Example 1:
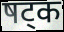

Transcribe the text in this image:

षट्क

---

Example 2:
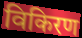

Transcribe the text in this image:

विकिरण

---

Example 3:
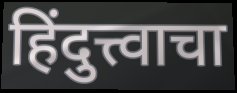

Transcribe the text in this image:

हिंदुत्त्वाचा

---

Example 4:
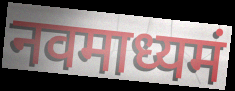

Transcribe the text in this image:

नवमाध्यमं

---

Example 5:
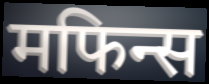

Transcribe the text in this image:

मफिन्स